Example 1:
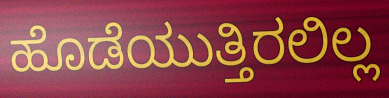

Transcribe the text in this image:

ಹೊಡೆಯುತ್ತಿರಲಿಲ್ಲ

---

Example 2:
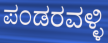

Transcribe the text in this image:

ಪಂಡರವಳ್ಳಿ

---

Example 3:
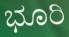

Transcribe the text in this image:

ಭೂರಿ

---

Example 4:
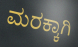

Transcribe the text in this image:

ಮರಕ್ಕಾಗಿ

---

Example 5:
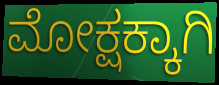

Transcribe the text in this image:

ಮೋಕ್ಷಕ್ಕಾಗಿ